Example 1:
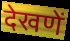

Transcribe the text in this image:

देखणें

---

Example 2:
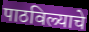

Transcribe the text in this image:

पाठविल्याचे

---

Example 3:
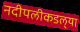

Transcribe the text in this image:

नदीपलीकडल्या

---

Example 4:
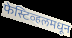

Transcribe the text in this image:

फेस्टिव्हलमधून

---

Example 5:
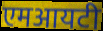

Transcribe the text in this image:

एमआयटी